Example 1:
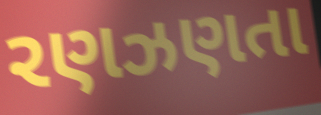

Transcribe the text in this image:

રણઝણતા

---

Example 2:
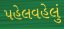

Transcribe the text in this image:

પહેલવહેલું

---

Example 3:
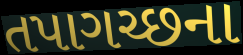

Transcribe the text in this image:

તપાગચ્છના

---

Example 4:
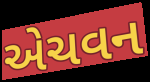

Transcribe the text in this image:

એચવન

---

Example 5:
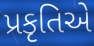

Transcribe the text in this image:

પ્રકૃતિએ